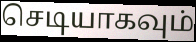
செடியாகவும்